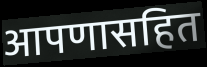
आपणासहित